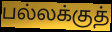
பல்லக்குத்